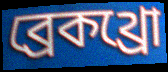
ব্রেকথ্রো